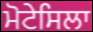
ਮੋਟੇਸਿਲਾ